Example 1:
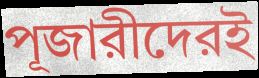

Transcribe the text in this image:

পূজারীদেরই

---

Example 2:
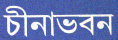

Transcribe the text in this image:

চীনাভবন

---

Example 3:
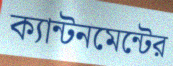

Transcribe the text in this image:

ক্যান্টনমেন্টের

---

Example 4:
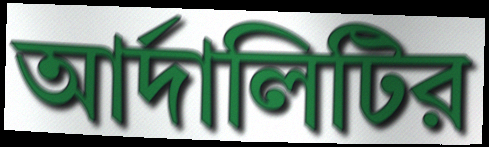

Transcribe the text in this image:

আর্দালিটির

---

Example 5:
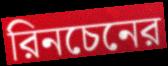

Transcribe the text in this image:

রিনচেনের